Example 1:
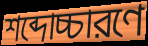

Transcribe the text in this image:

শব্দোচ্চারণে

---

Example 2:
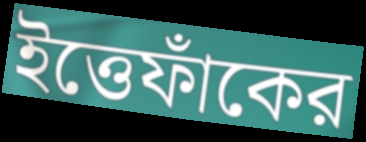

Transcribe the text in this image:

ইত্তেফাঁকের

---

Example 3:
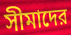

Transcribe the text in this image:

সীমাদের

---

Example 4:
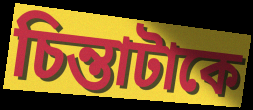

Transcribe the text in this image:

চিন্তাটাকে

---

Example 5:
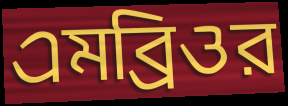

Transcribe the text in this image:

এমব্রিওর